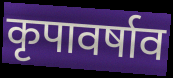
कृपावर्षाव